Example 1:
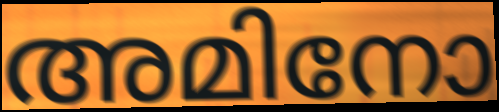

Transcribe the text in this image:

അമിനോ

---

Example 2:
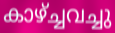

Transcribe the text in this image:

കാഴ്ച്ചവച്ചു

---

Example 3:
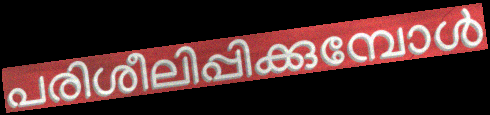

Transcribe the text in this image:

പരിശീലിപ്പിക്കുമ്പോൾ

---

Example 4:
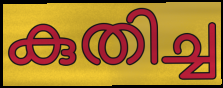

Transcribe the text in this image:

കുതിച്ച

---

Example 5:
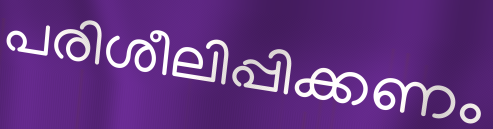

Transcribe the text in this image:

പരിശീലിപ്പിക്കണം